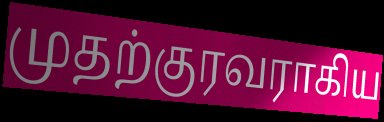
முதற்குரவராகிய